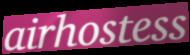
airhostess